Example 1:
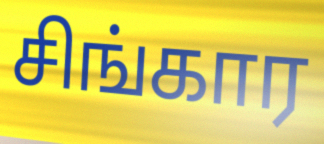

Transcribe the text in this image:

சிங்கார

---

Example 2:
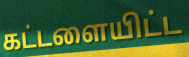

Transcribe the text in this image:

கட்டளையிட்ட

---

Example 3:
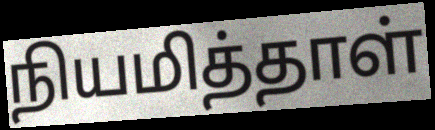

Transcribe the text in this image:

நியமித்தாள்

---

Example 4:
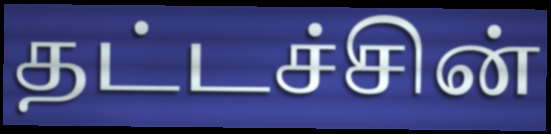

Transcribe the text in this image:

தட்டச்சின்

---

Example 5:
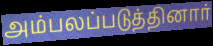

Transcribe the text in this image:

அம்பலப்படுத்தினார்